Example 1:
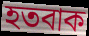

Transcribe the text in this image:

হতবাক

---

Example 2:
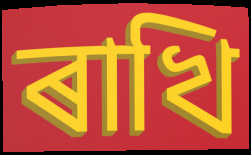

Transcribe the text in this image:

ৰাখি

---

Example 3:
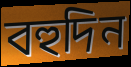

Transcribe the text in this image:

বহুদিন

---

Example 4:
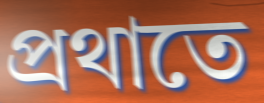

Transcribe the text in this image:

প্ৰথাতে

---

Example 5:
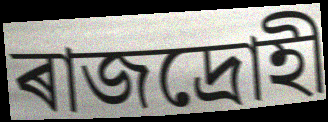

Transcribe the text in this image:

ৰাজদ্ৰোহী